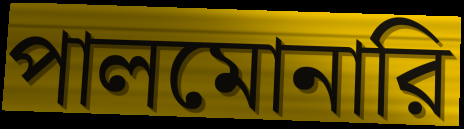
পালমোনারি